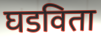
घडविता